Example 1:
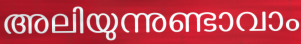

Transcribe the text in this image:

അലിയുന്നുണ്ടാവാം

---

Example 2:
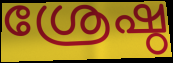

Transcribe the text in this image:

ശ്രേഷ്ഠ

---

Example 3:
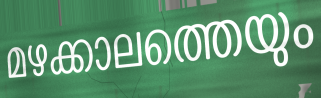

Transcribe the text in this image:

മഴക്കാലത്തെയും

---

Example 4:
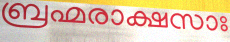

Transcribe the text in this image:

ബ്രഹ്മരാക്ഷസാഃ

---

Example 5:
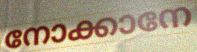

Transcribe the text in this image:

നോക്കാനേ